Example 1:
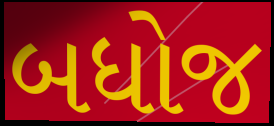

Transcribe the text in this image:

બધોજ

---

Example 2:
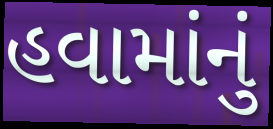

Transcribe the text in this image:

હવામાંનું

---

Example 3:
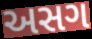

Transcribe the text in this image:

અસગ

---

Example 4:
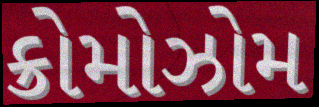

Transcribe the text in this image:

ક્રોમોઝોમ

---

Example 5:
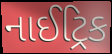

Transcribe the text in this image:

નાઈટ્રિક